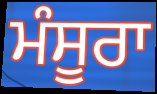
ਮੰਸੂਰਾ